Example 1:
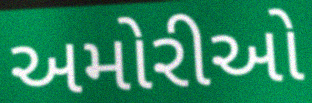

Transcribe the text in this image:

અમોરીઓ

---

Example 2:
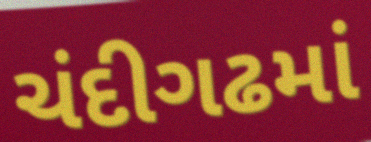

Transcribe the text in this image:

ચંદીગઢમાં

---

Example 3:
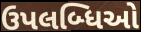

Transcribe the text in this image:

ઉપલબ્ધિઓ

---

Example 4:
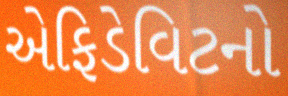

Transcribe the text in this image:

એફિડેવિટનો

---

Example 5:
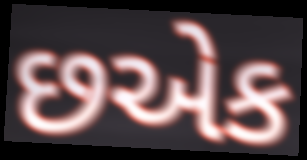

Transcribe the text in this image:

છએક